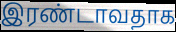
இரண்டாவதாக